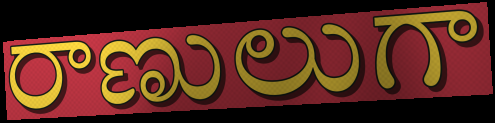
రాణులుగా